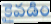
కైవడిం